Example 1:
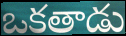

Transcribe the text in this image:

ఒకతాడు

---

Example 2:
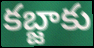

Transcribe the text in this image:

కబ్జాకు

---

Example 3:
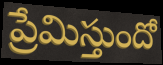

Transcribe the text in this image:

ప్రేమిస్తుందో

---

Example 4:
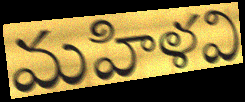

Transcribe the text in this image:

మహిళవి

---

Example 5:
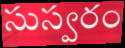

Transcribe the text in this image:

సుస్వరం